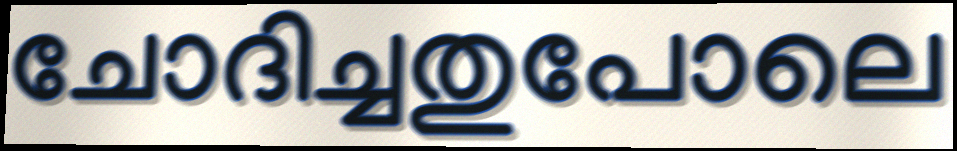
ചോദിച്ചതുപോലെ